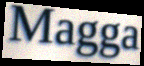
Magga